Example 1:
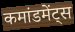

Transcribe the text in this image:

कमांडमेंट्स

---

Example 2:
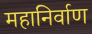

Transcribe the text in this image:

महानिर्वाण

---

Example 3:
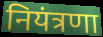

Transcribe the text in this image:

नियंत्रणा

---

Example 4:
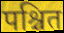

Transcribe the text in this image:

पश्चित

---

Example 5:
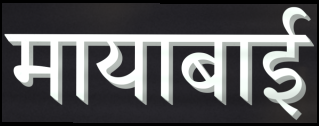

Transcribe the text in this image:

मायाबाई